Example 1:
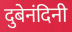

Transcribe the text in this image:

दुबेनंदिनी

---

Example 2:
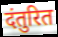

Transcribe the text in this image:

दंतुरित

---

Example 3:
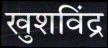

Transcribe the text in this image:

खुशविंद्र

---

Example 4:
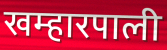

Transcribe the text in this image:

खम्हारपाली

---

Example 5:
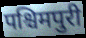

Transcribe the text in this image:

पश्चिमपुरी